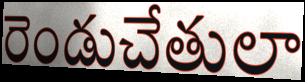
రెండుచేతులా